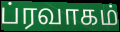
ப்ரவாகம்